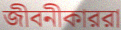
জীবনীকাররা